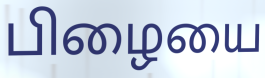
பிழையை